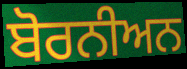
ਬੋਰਨੀਅਨ